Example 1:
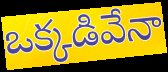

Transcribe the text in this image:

ఒక్కడివేనా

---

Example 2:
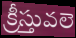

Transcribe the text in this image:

క్రీస్తువలె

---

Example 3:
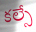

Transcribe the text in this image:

కల్సే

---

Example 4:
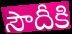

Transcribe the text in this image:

సౌదీకి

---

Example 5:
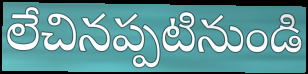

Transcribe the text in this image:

లేచినప్పటినుండి